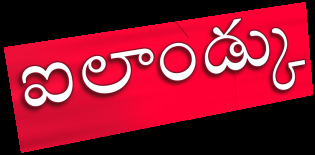
ఐలాండ్కు